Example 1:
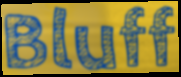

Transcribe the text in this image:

Bluff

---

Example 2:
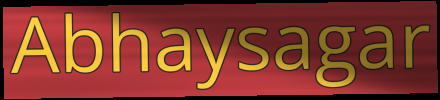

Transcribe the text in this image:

Abhaysagar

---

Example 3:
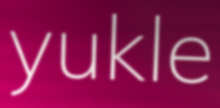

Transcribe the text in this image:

yukle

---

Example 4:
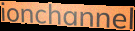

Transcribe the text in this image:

ionchannel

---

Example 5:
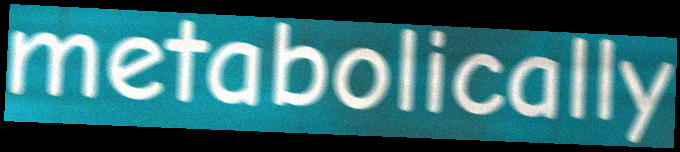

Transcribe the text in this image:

metabolically